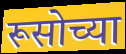
रूसोच्या